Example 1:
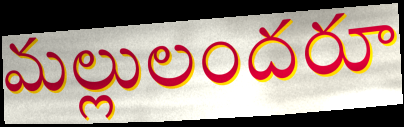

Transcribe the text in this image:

మల్లులందరూ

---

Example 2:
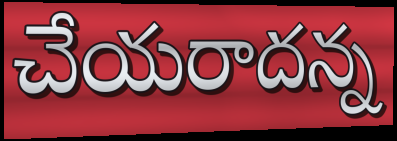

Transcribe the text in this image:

చేయరాదన్న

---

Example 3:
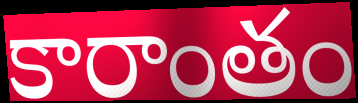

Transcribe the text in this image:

కారాంతం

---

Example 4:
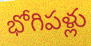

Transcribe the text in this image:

భోగిపళ్లు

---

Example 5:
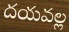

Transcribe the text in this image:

దయవల్ల